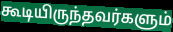
கூடியிருந்தவர்களும்